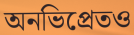
অনভিপ্রেতও